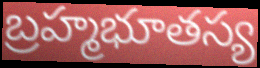
బ్రహ్మభూతస్య